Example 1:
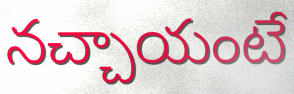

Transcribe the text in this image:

నచ్చాయంటే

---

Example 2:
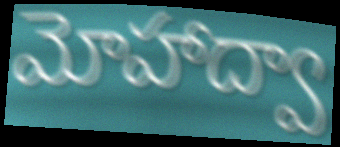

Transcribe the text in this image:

మోహాద్వా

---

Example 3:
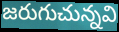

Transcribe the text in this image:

జరుగుచున్నవి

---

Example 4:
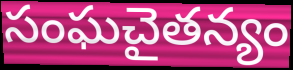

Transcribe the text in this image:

సంఘచైతన్యం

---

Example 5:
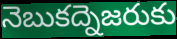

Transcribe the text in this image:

నెబుకద్నెజరుకు